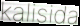
kalisida